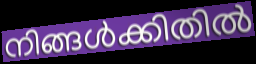
നിങ്ങൾക്കിതിൽ